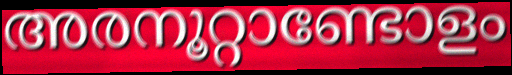
അരനൂറ്റാണ്ടോളം